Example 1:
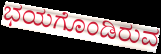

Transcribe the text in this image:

ಭಯಗೊಂಡಿರುವ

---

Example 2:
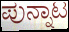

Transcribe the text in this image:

ಪುನ್ನಾಟ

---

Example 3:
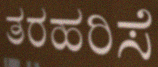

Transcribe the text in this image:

ತರಹರಿಸೆ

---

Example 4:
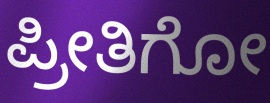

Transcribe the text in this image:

ಪ್ರೀತಿಗೋ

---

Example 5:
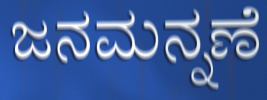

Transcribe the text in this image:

ಜನಮನ್ನಣೆ